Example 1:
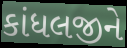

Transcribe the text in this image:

કાંધલજીને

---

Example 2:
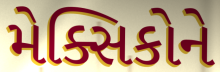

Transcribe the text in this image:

મેક્સિકોને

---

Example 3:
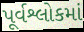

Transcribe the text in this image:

પૂર્વશ્લોકમાં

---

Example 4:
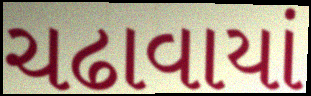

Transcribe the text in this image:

ચઢાવાયાં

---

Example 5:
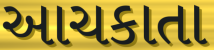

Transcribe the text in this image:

આચકાતા